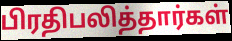
பிரதிபலித்தார்கள்